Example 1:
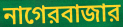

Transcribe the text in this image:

নাগেরবাজার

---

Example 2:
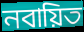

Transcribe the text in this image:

নবায়িত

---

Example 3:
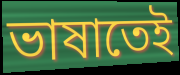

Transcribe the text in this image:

ভাষাতেই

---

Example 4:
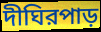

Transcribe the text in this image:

দীঘিরপাড়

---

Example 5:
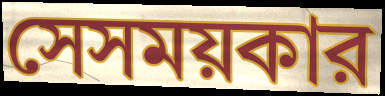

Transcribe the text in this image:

সেসময়কার